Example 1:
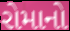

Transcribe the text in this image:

રોમાનો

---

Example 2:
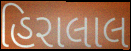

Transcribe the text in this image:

હિરાલાલ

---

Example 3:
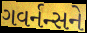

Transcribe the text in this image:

ગવર્નન્સને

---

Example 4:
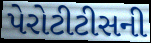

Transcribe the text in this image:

પેરોટીટીસની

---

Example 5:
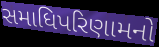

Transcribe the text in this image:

સમાધિપરિણામનો